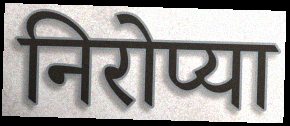
निरोप्या